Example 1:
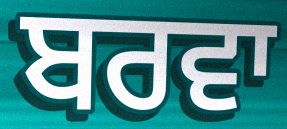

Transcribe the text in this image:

ਬਰਵਾ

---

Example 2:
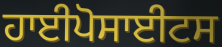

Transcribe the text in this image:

ਹਾਈਪੋਸਾਈਟਸ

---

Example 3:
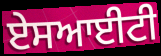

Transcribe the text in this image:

ਏਸਆਈਟੀ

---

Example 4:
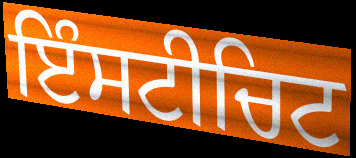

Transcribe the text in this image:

ਇੰਸਟੀਚਿਟ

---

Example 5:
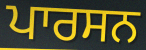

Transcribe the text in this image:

ਪਾਰਸਨ